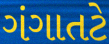
ગંગાતટે